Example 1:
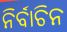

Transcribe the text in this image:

ନିର୍ବାଚିନ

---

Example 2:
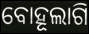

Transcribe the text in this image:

ବୋହୂଲାଗି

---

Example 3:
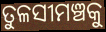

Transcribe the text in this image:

ତୁଳସୀମଞ୍ଚକୁ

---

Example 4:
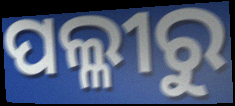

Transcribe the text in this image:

ପଲ୍ଳୀରୁ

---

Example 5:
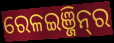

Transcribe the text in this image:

ରେଳଇଞ୍ଜିନ୍‌ର